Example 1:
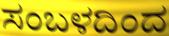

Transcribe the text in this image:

ಸಂಬಳದಿಂದ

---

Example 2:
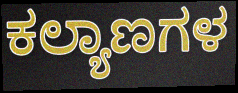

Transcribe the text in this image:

ಕಲ್ಯಾಣಗಳ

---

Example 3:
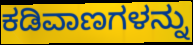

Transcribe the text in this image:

ಕಡಿವಾಣಗಳನ್ನು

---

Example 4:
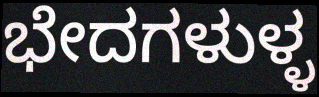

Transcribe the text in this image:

ಭೇದಗಳುಳ್ಳ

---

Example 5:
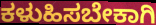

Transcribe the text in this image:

ಕಳುಹಿಸಬೇಕಾಗಿ